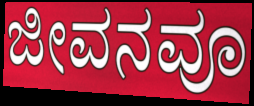
ಜೀವನವೂ